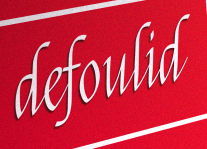
defoulid